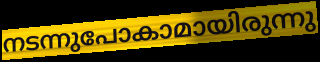
നടന്നുപോകാമായിരുന്നു